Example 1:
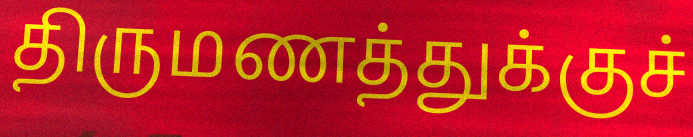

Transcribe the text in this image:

திருமணத்துக்குச்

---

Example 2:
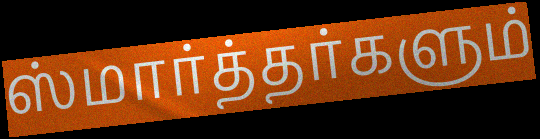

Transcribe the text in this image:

ஸ்மார்த்தர்களும்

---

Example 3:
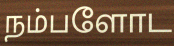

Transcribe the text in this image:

நம்பளோட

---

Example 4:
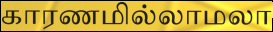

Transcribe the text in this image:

காரணமில்லாமலா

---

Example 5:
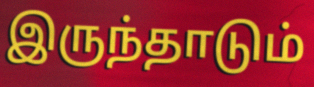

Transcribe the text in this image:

இருந்தாடும்